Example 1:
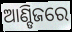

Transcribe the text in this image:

ଆଣ୍ଡିଜରେ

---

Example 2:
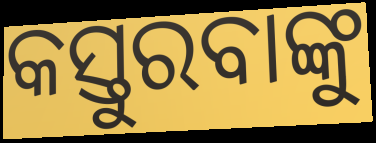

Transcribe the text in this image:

କସ୍ତୁରବାଙ୍କୁ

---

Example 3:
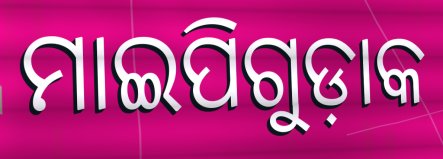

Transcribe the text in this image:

ମାଇପିଗୁଡ଼ାକ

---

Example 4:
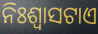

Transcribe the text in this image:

ନିଃଶ୍ଵାସଟାଏ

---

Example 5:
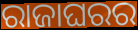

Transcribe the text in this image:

ରାଜାଘରର